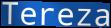
Tereza